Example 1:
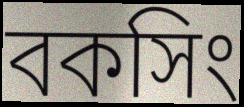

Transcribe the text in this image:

বকসিং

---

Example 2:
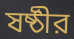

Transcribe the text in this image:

ষষ্ঠীর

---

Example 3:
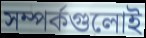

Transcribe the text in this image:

সম্পর্কগুলোই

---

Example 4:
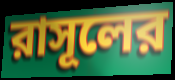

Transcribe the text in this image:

রাসূলের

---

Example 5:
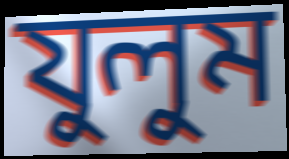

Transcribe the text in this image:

যুলুম